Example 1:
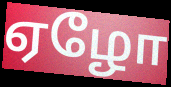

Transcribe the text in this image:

ஏழோ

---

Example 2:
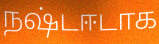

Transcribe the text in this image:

நஷ்டஈடாக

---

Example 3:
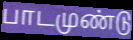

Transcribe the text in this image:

பாடமுண்டு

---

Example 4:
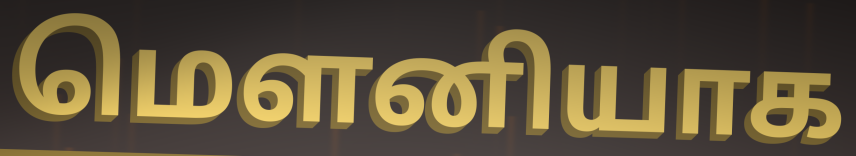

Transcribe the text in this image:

மெளனியாக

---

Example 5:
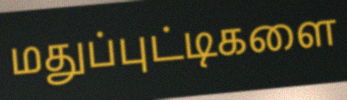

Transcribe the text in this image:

மதுப்புட்டிகளை